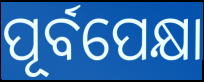
ପୂର୍ବପେକ୍ଷା